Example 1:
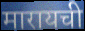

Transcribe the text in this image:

मारायची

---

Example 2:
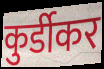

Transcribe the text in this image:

कुर्डीकर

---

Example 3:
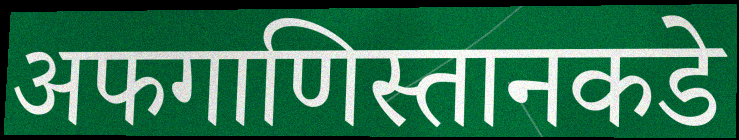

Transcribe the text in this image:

अफगाणिस्तानकडे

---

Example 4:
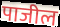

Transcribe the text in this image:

पाजील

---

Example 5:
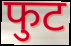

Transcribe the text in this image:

फुट